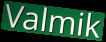
Valmik